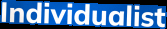
Individualist